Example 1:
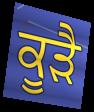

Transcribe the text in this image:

ਕੂੜੈ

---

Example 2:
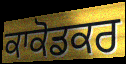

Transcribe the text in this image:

ਕਾਕੋਡਕਰ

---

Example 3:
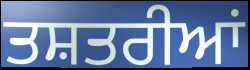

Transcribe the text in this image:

ਤਸ਼ਤਰੀਆਂ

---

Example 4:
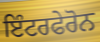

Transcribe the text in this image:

ਇੰਟਰਫੇਰੋਨ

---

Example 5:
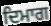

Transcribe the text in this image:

ਦਿਮਾਗ